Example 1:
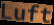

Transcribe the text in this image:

Luft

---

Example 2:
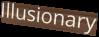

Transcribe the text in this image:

Illusionary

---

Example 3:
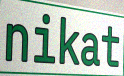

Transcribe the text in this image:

nikat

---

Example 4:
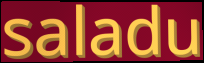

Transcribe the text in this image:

saladu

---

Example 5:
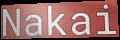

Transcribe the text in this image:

Nakai